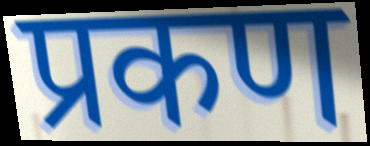
प्रकण